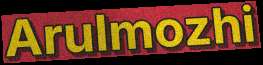
Arulmozhi